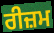
ਰੀਜ਼ਮ